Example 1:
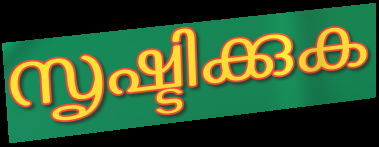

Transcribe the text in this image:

സൃഷ്ടിക്കുക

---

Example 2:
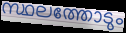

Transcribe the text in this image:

സ്ഥലത്തോടും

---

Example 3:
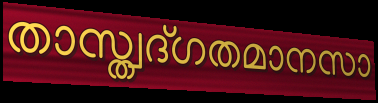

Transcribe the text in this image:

താസ്ത്വദ്ഗതമാനസാ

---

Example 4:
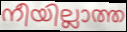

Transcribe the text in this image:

നീയില്ലാത്ത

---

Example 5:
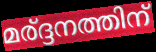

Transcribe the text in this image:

മര്ദ്ദനത്തിന്